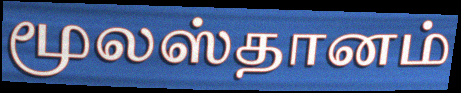
மூலஸ்தானம்